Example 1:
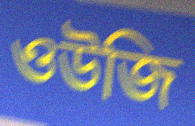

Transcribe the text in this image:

ওউজি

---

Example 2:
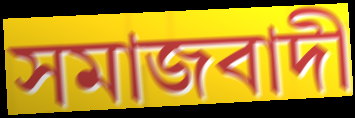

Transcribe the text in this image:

সমাজবাদী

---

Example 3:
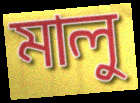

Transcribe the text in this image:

মালু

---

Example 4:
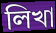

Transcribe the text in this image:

লিখা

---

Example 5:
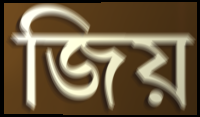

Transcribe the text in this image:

জিয়